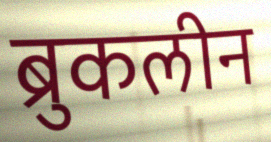
ब्रुकलीन